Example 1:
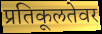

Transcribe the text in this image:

प्रतिकूलतेवर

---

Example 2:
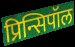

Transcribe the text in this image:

प्रिन्सिपॉल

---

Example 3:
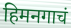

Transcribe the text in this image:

हिमनगाचं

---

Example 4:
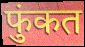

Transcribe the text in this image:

फुंकत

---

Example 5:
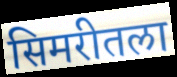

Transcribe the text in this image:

सिमरीतला